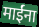
माईंना